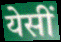
येसीं